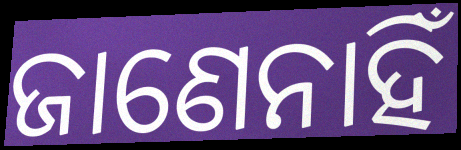
ଜାଣେନାହିଁ